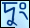
দুং